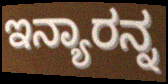
ಇನ್ಯಾರನ್ನ